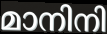
മാനിനി